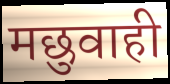
मछुवाही